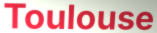
Toulouse